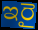
ఇరై